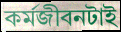
কর্মজীবনটাই